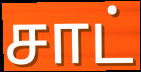
சாட்